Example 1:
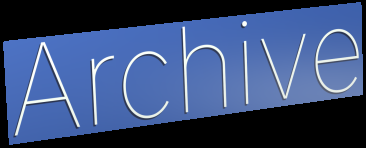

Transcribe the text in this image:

Archive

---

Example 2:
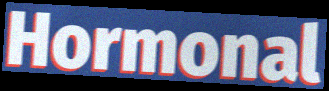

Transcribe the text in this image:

Hormonal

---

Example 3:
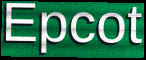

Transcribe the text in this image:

Epcot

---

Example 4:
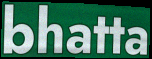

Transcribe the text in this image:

bhatta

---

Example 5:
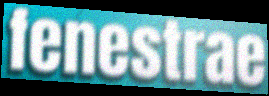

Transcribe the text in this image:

fenestrae